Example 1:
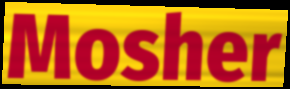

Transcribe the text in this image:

Mosher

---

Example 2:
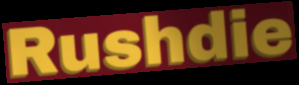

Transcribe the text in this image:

Rushdie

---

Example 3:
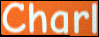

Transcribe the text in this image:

Charl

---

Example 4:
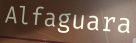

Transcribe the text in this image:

Alfaguara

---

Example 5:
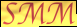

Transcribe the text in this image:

SMM